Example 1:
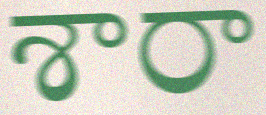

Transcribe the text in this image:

శారా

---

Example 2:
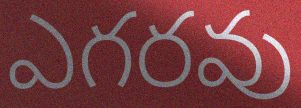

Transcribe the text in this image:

ఎగరవు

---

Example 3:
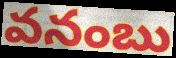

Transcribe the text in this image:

వనంబు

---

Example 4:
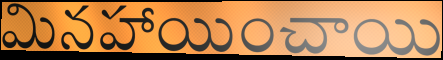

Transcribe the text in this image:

మినహాయించాయి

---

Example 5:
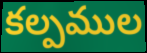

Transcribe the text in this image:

కల్పముల